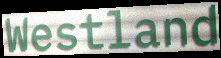
Westland